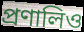
প্রণালিও